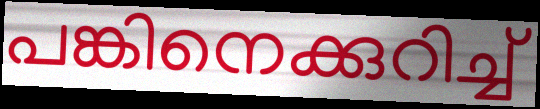
പങ്കിനെക്കുറിച്ച്